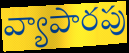
వ్యాపారపు